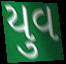
યુવ